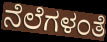
ನೆಲೆಗಳಂತೆ